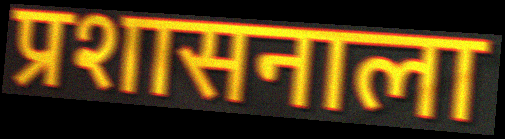
प्रशासनाला